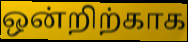
ஒன்றிற்காக